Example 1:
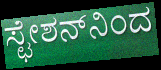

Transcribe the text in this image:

ಸ್ಟೇಶನ್‌ನಿಂದ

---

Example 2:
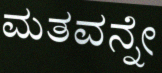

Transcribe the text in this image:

ಮತವನ್ನೇ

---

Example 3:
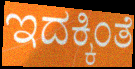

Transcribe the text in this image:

ಇದಕ್ಕಿಂತೆ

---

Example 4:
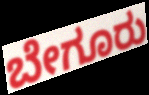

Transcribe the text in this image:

ಬೇಗೂರು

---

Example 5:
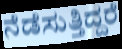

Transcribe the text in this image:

ನೆಡೆಸುತ್ತಿದ್ದರೆ